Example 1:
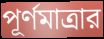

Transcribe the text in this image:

পূর্ণমাত্রার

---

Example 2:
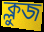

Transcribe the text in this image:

ক্লুজ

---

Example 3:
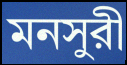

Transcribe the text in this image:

মনসুরী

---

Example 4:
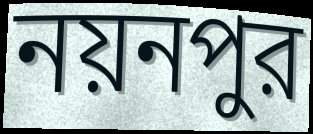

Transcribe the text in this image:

নয়নপুর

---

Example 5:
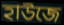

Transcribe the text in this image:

হাউজে